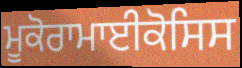
ਮੂਕੋਰਾਮਾਈਕੋਸਿਸ